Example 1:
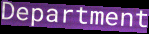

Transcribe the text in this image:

Department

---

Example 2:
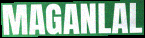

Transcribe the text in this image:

MAGANLAL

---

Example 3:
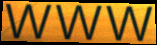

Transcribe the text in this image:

www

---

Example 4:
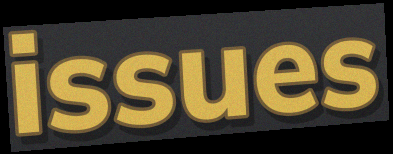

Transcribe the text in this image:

issues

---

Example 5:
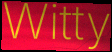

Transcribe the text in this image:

Witty